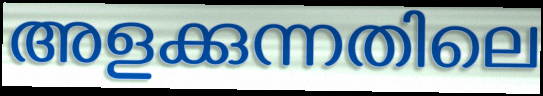
അളക്കുന്നതിലെ